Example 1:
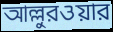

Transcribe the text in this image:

আল্লুরওয়ার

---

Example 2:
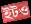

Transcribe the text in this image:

ইটও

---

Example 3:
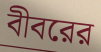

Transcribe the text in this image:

বীবরের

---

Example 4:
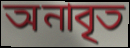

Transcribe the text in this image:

অনাবৃত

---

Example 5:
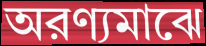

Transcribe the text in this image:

অরণ্যমাঝে